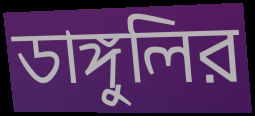
ডাঙ্গুলির